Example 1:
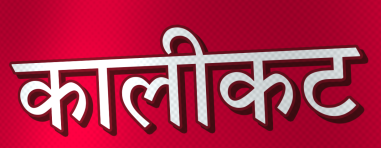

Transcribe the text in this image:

कालीकट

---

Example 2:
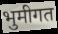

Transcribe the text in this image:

भुमीगत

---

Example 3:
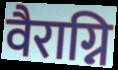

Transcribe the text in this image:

वैराग्नि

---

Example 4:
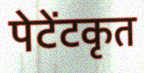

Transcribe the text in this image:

पेटेंटकृत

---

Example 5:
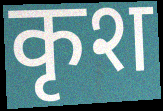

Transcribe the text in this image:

कृश